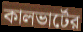
কালভার্টের